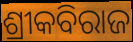
ଶ୍ରୀକବିରାଜ